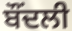
ਬੌਂਦਲੀ